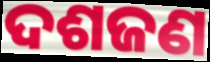
ଦଶଜଣ